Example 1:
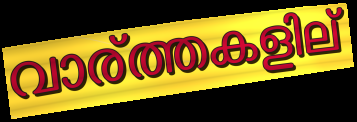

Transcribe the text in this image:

വാര്ത്തകളില്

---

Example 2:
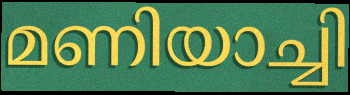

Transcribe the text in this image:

മണിയാച്ചി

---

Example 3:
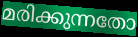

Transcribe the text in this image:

മരിക്കുന്നതോ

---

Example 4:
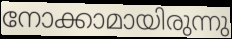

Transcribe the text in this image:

നോക്കാമായിരുന്നു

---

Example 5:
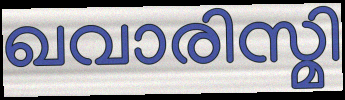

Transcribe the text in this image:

ഖവാരിസ്മി